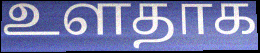
உளதாக